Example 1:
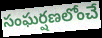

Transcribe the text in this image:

సంఘర్షణలోంచే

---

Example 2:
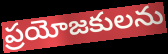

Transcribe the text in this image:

ప్రయోజకులను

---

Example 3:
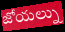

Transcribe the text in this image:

జోయల్ను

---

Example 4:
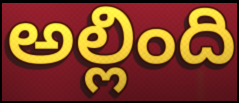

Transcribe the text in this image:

అల్లింది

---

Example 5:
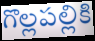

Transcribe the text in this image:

గొల్లపల్లికి